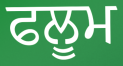
ਫਲੂਮ